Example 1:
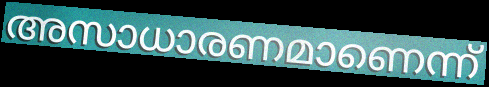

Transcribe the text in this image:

അസാധാരണമാണെന്ന്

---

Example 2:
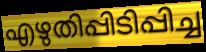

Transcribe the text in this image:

എഴുതിപ്പിടിപ്പിച്ച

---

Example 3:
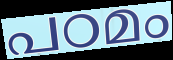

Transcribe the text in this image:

പഠമം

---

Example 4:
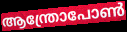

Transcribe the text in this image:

ആന്ത്രോപോൺ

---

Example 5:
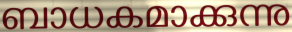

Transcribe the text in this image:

ബാധകമാക്കുന്നു